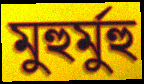
মুহুর্মুহু